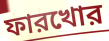
ফারখোর